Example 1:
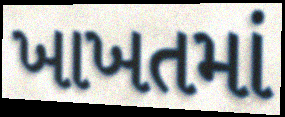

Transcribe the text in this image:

ખાખતમાં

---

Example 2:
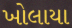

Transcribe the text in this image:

ખોલાયા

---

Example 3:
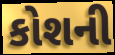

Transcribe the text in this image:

કોશની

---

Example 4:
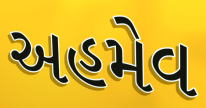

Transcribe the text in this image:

અહમેવ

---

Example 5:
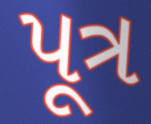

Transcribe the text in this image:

પૂત્ર